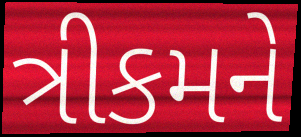
ત્રીકમને